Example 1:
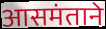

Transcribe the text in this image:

आसमंताने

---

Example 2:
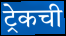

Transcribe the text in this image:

ट्रेकची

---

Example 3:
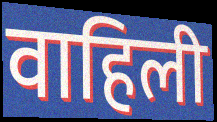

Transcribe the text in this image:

वाहिली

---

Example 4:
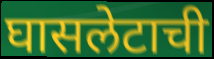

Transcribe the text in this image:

घासलेटाची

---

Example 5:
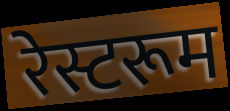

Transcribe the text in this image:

रेस्टरूम